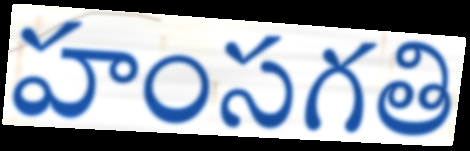
హంసగతి